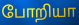
போறியா